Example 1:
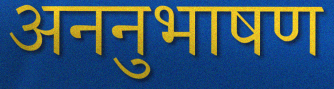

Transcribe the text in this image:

अननुभाषण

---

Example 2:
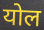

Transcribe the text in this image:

योल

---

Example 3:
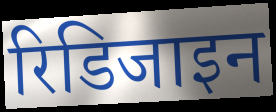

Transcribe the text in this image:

रिडिजाइन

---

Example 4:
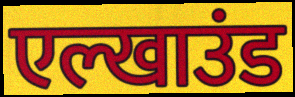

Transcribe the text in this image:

एल्खाउंड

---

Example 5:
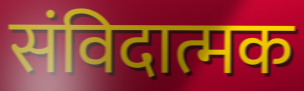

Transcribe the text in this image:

संविदात्मक